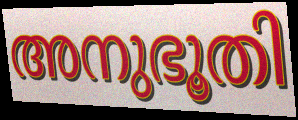
അനുഭൂതി